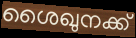
ശൈഖുനക്ക്